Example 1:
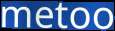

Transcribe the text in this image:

metoo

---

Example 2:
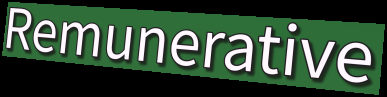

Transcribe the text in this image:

Remunerative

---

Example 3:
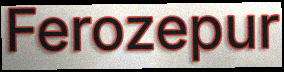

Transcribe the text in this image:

Ferozepur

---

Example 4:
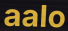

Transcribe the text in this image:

aalo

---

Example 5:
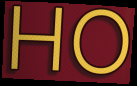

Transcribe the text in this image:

HO